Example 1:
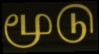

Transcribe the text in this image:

மூடு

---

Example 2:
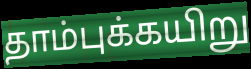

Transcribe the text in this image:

தாம்புக்கயிறு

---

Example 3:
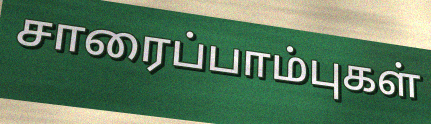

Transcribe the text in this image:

சாரைப்பாம்புகள்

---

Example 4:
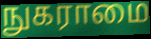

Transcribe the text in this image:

நுகராமை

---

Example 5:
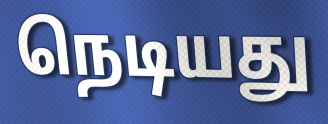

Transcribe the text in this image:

நெடியது